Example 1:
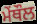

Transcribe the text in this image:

ਮੇਂਥੌਲ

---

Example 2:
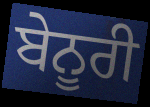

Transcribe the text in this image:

ਬੇਨੂਰੀ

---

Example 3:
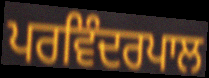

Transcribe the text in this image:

ਪਰਵਿੰਦਰਪਾਲ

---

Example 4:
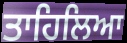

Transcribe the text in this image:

ਤਾਹਿਲਿਆ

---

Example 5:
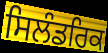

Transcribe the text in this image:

ਸਿਲੰਡਰਿਕ